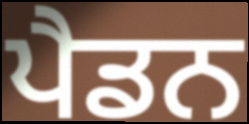
ਪੈਡਨ